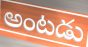
అంటడు